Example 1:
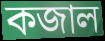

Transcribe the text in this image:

কজাল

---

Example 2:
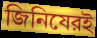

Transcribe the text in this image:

জিনিষেরই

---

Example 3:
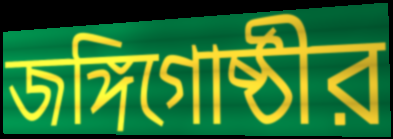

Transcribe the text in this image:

জঙ্গিগোষ্ঠীর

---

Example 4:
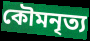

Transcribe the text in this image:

কৌমনৃত্য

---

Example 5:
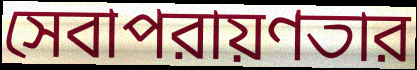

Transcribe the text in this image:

সেবাপরায়ণতার